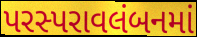
પરસ્પરાવલંબનમાં